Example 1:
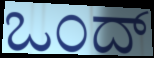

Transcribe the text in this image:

ಒಂದ್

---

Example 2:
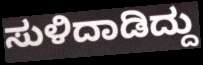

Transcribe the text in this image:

ಸುಳಿದಾಡಿದ್ದು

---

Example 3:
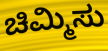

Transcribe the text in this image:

ಚಿಮ್ಮಿಸು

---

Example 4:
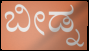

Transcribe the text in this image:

ಬೀಡ್ನ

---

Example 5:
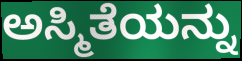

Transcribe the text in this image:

ಅಸ್ಮಿತೆಯನ್ನು